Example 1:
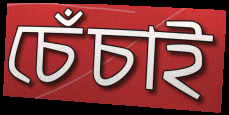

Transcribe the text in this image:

চেঁচাই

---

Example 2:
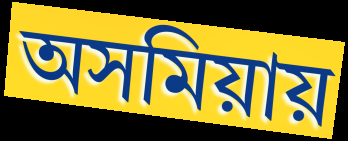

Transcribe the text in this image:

অসমিয়ায়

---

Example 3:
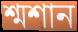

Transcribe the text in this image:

শ্মশান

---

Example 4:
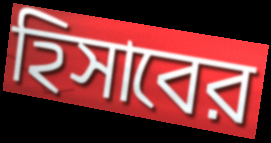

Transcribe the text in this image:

হিসাবের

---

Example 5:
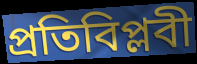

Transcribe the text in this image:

প্রতিবিপ্লবী